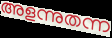
അളന്നുതന്ന